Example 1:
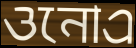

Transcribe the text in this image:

ওনোএ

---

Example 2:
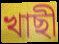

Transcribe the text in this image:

খাছী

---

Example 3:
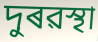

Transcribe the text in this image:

দুৰৱস্থা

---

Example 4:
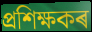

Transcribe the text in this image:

প্ৰশিক্ষকৰ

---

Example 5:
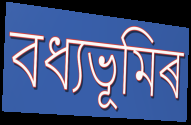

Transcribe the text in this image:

বধ্যভূমিৰ